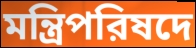
মন্ত্রিপরিষদে